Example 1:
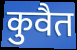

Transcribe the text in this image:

कुवैत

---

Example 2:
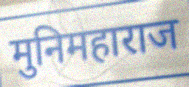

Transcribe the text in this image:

मुनिमहाराज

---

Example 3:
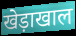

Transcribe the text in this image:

खेड़ाखाल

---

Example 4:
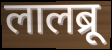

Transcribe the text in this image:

लालब्रू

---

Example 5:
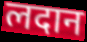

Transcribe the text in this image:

लदान